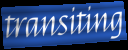
transiting